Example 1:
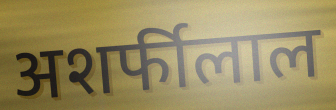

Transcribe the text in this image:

अशर्फीलाल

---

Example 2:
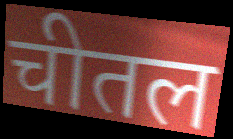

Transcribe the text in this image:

चीतल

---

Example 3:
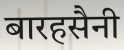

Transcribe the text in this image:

बारहसैनी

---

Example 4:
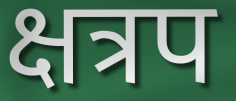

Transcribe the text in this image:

क्षत्रप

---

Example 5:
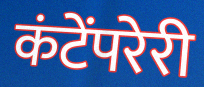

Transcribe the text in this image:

कंटेंपरेरी